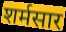
शर्मसार